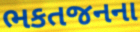
ભકતજનના